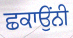
ਛਕਾਉਂਨੀ